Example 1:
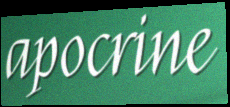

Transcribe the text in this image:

apocrine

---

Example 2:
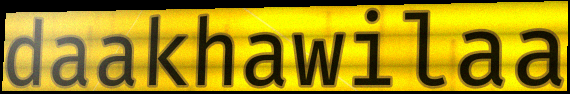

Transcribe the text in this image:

daakhawilaa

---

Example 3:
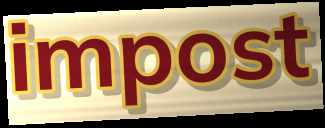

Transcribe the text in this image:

impost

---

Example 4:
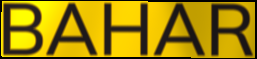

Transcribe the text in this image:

BAHAR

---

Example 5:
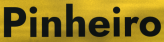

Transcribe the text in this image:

Pinheiro